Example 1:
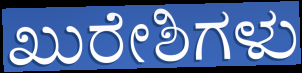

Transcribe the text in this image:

ಖುರೇಶಿಗಳು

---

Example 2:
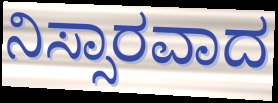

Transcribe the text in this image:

ನಿಸ್ಸಾರವಾದ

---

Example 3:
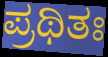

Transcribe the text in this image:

ಪ್ರಥಿತಃ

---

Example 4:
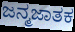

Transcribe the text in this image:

ಜನ್ಮಜಾತಕ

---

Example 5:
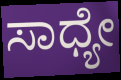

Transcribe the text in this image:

ಸಾಧ್ಯೇ